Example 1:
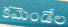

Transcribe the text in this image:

కమెండోల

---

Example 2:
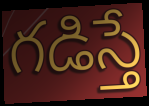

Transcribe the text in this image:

గడిస్తే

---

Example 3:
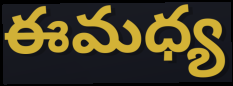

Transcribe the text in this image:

ఈమధ్య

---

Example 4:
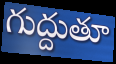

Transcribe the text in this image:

గుద్దుతూ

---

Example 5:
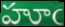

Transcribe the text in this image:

హూఁ